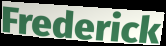
Frederick